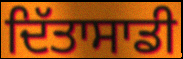
ਦਿੱਤਾਸਾਡੀ